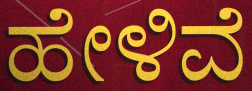
ಹೇಳಿವೆ